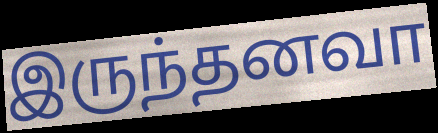
இருந்தனவா